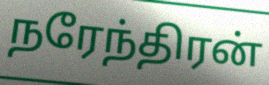
நரேந்திரன்